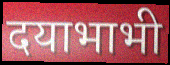
दयाभाभी